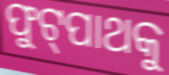
ଫୁଟ୍‌ପାଥକୁ